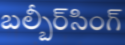
బల్బీర్‌సింగ్